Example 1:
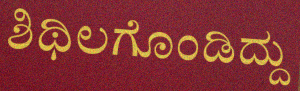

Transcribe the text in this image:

ಶಿಥಿಲಗೊಂಡಿದ್ದು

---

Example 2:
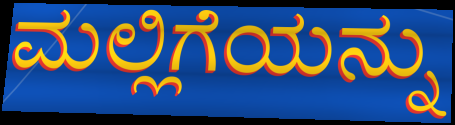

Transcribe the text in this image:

ಮಲ್ಲಿಗೆಯನ್ನು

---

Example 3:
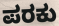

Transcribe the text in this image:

ಪರಕು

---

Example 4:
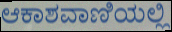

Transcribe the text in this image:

ಆಕಾಶವಾಣಿಯಲ್ಲಿ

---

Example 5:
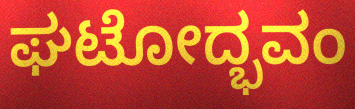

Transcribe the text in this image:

ಘಟೋದ್ಭವಂ